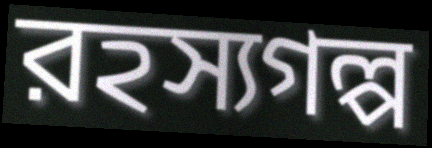
রহস্যগল্প